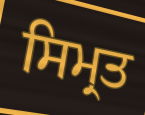
ਸਿਮ੍ਰਤ